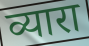
व्यारा